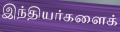
இந்தியர்களைக்